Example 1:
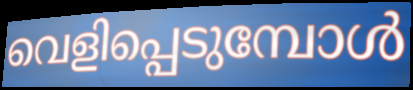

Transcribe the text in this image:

വെളിപ്പെടുമ്പോൾ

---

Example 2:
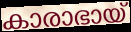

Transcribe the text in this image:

കാരാഭായ്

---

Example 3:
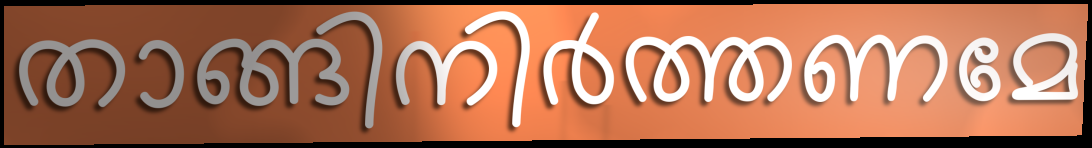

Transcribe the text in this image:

താങ്ങിനിർത്തണമേ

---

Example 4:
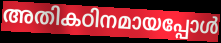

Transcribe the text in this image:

അതികഠിനമായപ്പോൾ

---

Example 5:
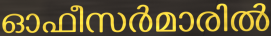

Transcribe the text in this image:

ഓഫീസർമാരിൽ